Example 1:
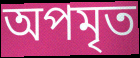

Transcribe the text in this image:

অপমৃত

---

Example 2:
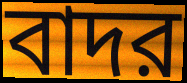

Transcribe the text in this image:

বাদর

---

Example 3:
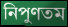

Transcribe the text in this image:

নিপুণতম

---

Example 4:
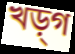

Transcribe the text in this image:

খড়্‌গ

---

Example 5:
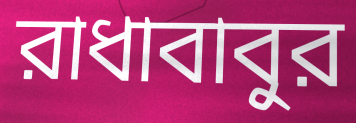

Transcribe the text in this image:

রাধাবাবুর